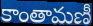
కాంతామణీ